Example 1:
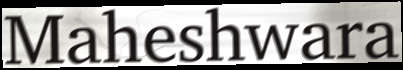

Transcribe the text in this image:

Maheshwara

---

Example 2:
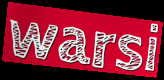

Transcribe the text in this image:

warsi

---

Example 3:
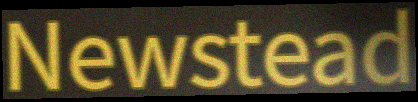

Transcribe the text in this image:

Newstead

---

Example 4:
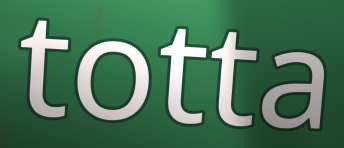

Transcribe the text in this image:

totta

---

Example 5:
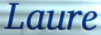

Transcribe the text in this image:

Laure